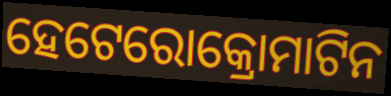
ହେଟେରୋକ୍ରୋମାଟିନ